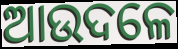
ଆଉଦଳେ